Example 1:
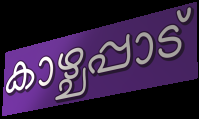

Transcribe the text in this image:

കാഴ്ചപ്പാട്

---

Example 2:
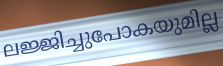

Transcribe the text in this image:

ലജ്ജിച്ചുപോകയുമില്ല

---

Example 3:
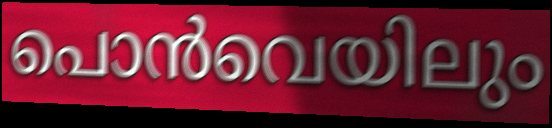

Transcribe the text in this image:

പൊൻവെയിലും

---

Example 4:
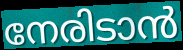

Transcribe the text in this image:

നേരിടാൻ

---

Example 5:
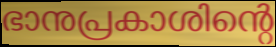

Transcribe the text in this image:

ഭാനുപ്രകാശിന്റെ